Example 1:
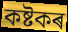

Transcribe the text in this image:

কষ্টকৰ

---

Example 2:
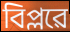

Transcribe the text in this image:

বিপ্লৱে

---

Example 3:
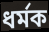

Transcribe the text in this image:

ধৰ্মক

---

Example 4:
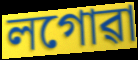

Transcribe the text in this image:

লগোৱা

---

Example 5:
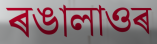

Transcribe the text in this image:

ৰঙালাওৰ